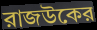
রাজউকের